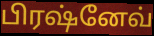
பிரஷ்னேவ்